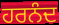
ਹਰਨੰਦ